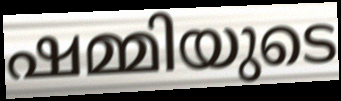
ഷമ്മിയുടെ